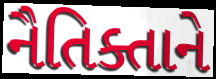
નૈતિક્તાને